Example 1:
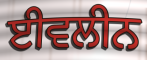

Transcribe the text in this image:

ਈਵਲੀਨ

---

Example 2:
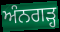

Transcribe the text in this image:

ਅੰਨਗੜ੍ਹ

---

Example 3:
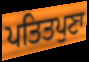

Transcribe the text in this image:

ਪਤਿਤਪੁਣਾ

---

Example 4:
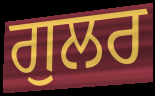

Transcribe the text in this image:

ਗੁਲਰ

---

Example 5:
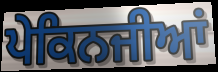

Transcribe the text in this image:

ਪੇਕਿਨਜੀਆਂ